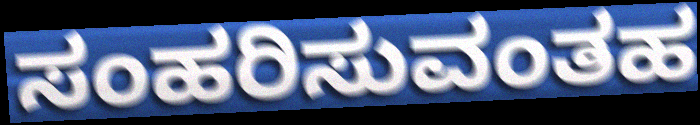
ಸಂಹರಿಸುವಂತಹ